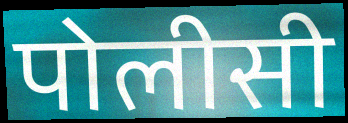
पोलीसी